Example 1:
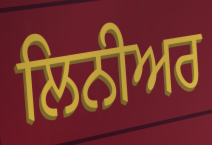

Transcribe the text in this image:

ਲਿਨੀਅਰ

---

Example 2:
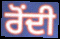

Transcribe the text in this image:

ਰੋਂਦੀ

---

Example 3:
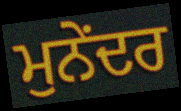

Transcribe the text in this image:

ਮੁਨੇਂਦਰ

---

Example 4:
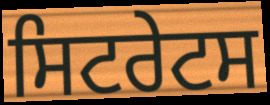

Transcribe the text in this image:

ਸਿਟਰੇਟਸ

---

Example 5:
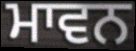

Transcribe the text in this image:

ਮਾਵਨ